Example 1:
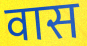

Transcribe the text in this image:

वास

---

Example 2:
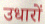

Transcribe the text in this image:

उधारों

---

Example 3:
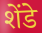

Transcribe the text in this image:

शेंडे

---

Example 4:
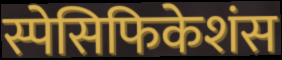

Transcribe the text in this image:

स्पेसिफिकेशंस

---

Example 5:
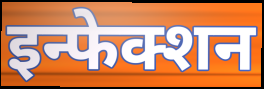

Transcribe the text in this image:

इन्फेक्शन